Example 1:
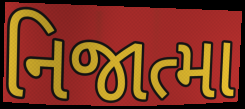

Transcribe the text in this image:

નિજાત્મા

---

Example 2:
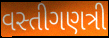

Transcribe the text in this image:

વસ્તીગણત્રી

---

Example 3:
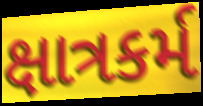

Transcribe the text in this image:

ક્ષાત્રકર્મ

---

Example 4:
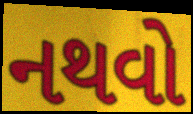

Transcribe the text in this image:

નથવો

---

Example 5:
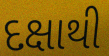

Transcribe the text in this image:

દક્ષાથી